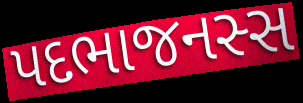
પદભાજનસ્સ